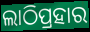
ଲାଠିପ୍ରହାର